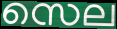
സെല